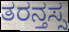
ತರನ್ತಸ್ಸ